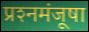
प्रश्नमंजूषा